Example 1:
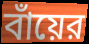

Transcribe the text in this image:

বাঁয়ের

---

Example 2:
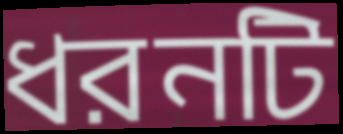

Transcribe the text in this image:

ধরনটি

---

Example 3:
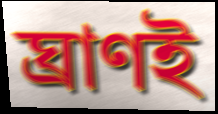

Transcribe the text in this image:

ঘ্রাণই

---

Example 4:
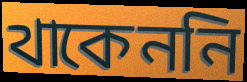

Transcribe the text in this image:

থাকেননি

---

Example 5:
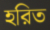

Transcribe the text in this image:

হরিত